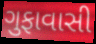
ગુફાવાસી